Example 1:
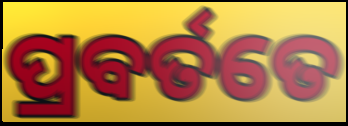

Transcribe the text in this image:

ପ୍ରବର୍ତତେ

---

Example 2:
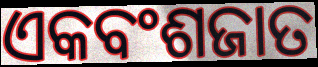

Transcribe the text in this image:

ଏକବଂଶଜାତ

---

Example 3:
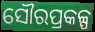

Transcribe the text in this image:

ସୌରପ୍ରକଳ୍ପ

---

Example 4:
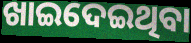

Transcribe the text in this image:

ଖାଇଦେଇଥିବା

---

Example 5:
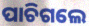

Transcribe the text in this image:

ପାଚିଗଲେ